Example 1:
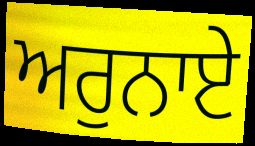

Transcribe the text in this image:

ਅਰੁਨਾਏ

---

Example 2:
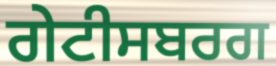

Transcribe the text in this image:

ਗੇਟੀਸਬਰਗ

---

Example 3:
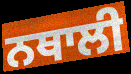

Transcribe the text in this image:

ਨਥਾਲੀ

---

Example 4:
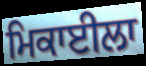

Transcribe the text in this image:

ਮਿਕਾਈਲਾ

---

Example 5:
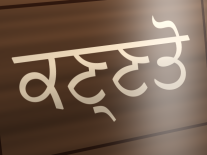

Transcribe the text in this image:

ਕਣ੍ਣਤੋ